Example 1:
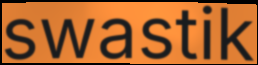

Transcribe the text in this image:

swastik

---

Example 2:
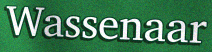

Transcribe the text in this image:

Wassenaar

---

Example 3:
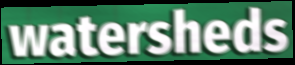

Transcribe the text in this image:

watersheds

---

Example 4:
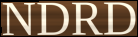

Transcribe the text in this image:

NDRD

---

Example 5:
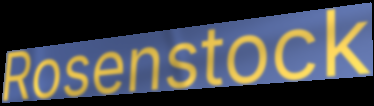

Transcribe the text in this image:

Rosenstock